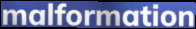
malformation